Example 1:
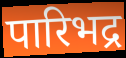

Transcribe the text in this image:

पारिभद्र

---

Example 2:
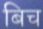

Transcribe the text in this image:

बिच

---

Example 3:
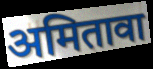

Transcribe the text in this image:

अमितावा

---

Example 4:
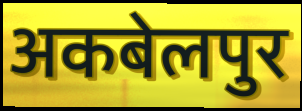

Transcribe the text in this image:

अकबेलपुर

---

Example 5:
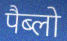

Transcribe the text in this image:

पैब्लो